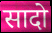
सादो